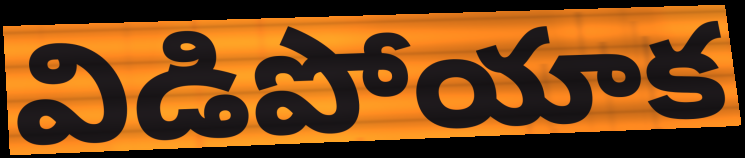
విడిపోయాక